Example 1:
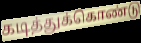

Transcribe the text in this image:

கடித்துக்கொண்டு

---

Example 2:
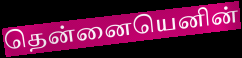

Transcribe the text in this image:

தென்னையெனின்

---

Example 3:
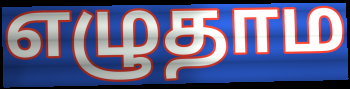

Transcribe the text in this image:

எழுதாம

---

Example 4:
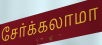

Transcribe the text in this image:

சேர்க்கலாமா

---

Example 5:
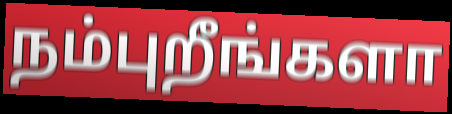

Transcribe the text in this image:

நம்புறீங்களா